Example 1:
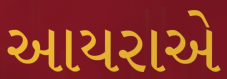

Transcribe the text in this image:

આયરાએ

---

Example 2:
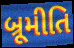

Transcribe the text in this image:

બ્રૂમીતિ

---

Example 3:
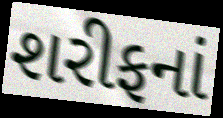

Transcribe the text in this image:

શરીફનાં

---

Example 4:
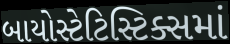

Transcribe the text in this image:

બાયોસ્ટેટિસ્ટિક્સમાં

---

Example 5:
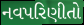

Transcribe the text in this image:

નવપરિણીતો